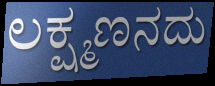
ಲಕ್ಷ್ಮಣನದು